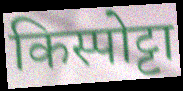
किस्पोट्टा